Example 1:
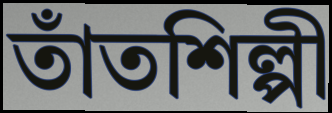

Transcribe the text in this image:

তাঁতশিল্পী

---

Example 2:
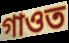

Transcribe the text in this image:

গাওত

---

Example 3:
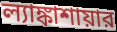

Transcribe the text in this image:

ল্যাঙ্কাশায়ার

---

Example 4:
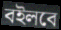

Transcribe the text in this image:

বইলবে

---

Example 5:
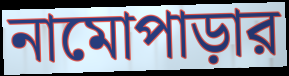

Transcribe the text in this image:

নামোপাড়ার